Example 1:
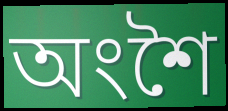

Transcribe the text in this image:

অংশৈ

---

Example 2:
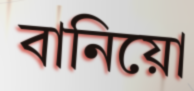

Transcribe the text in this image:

বানিয়ো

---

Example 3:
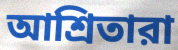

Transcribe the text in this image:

আশ্রিতারা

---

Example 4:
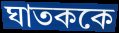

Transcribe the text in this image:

ঘাতককে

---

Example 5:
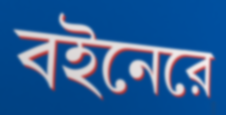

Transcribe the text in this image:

বইনেরে